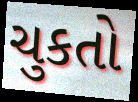
ચુકતો